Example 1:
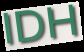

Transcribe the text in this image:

IDH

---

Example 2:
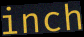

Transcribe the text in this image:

inch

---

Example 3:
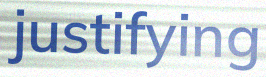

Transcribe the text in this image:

justifying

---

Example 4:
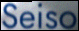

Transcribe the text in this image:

Seiso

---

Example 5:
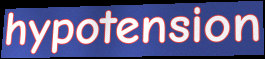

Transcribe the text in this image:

hypotension